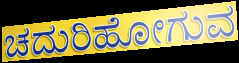
ಚದುರಿಹೋಗುವ